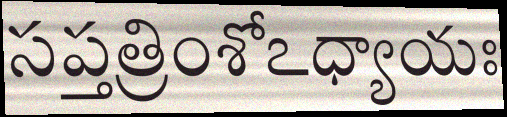
సప్తత్రింశోఽధ్యాయః